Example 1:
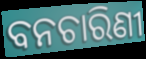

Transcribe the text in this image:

ବନଚାରିଣୀ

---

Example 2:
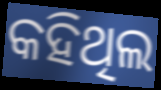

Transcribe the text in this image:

କହିଥିଲ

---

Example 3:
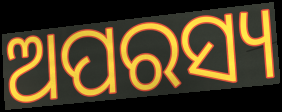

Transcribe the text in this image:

ଅପରସ୍ୟ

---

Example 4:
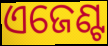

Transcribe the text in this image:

ଏଜେଣ୍ଟ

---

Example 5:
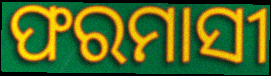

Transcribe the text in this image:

ଫରମାସୀ